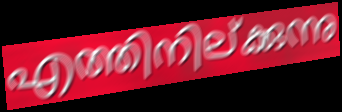
എത്തിനില്ക്കുന്നു